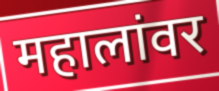
महालांवर